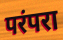
परंपरा